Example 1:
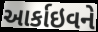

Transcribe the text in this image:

આર્કાઇવને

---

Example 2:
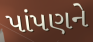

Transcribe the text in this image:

પાંપણને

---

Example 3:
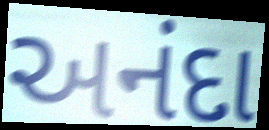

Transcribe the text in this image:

અનંદા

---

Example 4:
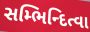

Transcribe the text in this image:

સમ્ભિન્દિત્વા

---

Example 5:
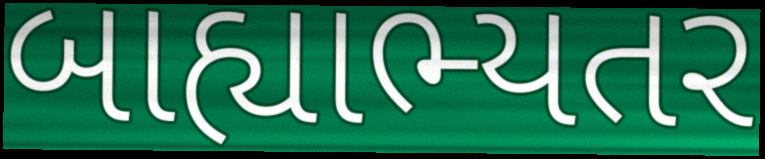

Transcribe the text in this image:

બાહ્યાભ્યતર